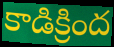
కాడిక్రింద